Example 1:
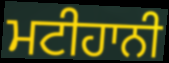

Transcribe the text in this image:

ਮਟੀਹਾਨੀ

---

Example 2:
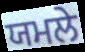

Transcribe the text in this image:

ਯਮਲੇ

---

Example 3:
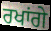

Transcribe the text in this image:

ਰਖਾਂਗੇ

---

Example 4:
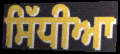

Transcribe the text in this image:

ਸਿੱਧੀਆ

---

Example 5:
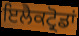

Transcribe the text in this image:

ਇਲੈਕਟ੍ਰੋਡਾਂ